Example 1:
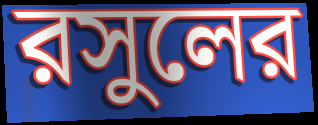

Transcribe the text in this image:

রসুলের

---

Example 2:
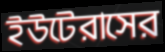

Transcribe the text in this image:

ইউটেরাসের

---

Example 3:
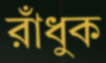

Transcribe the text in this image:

রাঁধুক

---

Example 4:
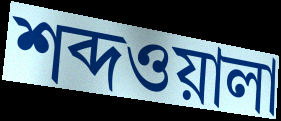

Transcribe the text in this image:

শব্দওয়ালা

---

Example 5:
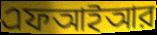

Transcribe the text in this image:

এফআইআর